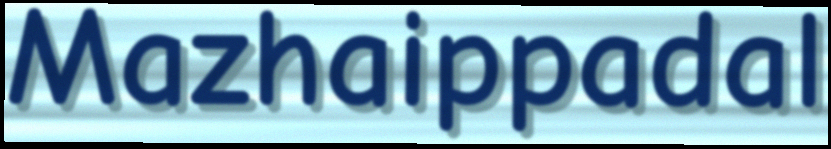
Mazhaippadal